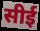
सीई